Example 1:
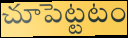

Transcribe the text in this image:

చూపెట్టటం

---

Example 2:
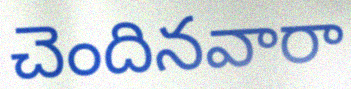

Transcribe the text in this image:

చెందినవారా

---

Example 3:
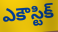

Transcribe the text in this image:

ఎకౌస్టిక్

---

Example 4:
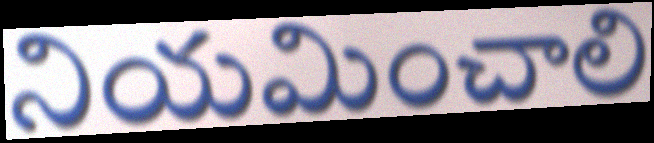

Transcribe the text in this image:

నియమించాలి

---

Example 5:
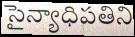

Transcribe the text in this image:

సైన్యాధిపతిని